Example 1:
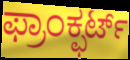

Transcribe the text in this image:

ಫ್ರಾಂಕ್ಫರ್ಟ್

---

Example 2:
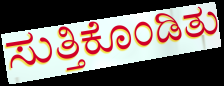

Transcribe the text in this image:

ಸುತ್ತಿಕೊಂಡಿತು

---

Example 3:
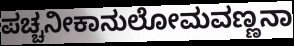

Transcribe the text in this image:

ಪಚ್ಚನೀಕಾನುಲೋಮವಣ್ಣನಾ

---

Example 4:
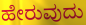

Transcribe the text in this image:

ಹೇರುವುದು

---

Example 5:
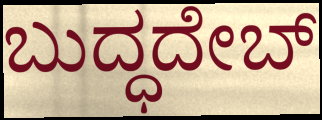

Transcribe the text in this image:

ಬುದ್ಧದೇಬ್